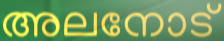
അലനോട്